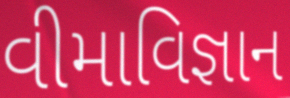
વીમાવિજ્ઞાન